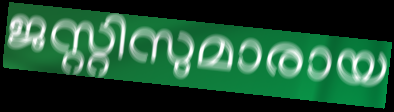
ജസ്റ്റിസുമാരായ